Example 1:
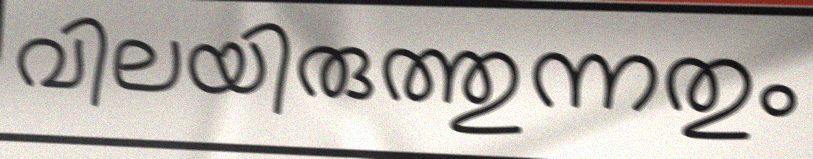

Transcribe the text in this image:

വിലയിരുത്തുന്നതും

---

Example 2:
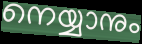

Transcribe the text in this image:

നെയ്യാനും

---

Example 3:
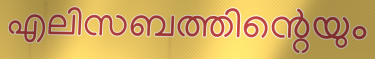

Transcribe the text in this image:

എലിസബത്തിന്റെയും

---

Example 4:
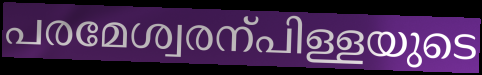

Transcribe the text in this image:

പരമേശ്വരന്പിള്ളയുടെ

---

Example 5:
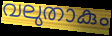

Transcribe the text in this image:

വലുതാകും